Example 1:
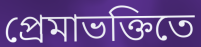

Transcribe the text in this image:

প্রেমাভক্তিতে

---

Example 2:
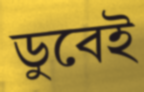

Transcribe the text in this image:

ডুবেই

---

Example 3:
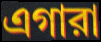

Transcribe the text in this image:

এগারা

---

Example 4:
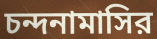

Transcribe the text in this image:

চন্দনামাসির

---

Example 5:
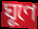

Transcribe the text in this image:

ঘূণে